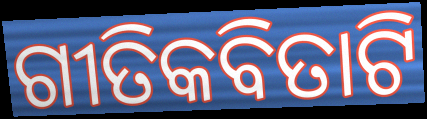
ଗୀତିକବିତାଟି